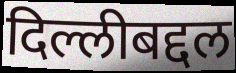
दिल्लीबद्दल